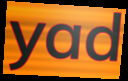
yad